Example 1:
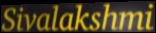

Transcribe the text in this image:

Sivalakshmi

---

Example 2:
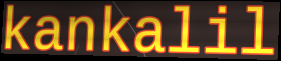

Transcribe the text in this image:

kankalil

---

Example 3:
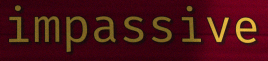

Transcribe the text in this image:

impassive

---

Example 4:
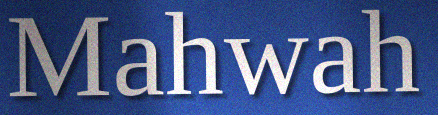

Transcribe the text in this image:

Mahwah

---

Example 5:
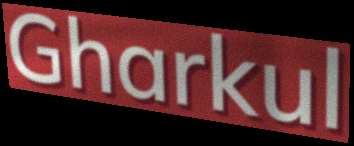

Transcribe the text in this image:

Gharkul